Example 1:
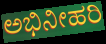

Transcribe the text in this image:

ಅಭಿನೀಹರಿ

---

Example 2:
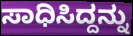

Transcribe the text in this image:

ಸಾಧಿಸಿದ್ದನ್ನು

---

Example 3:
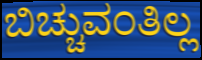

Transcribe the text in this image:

ಬಿಚ್ಚುವಂತಿಲ್ಲ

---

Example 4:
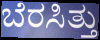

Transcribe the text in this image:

ಬೆರಸಿತ್ತು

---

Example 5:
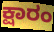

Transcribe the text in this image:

ಕ್ಷಾರಂ